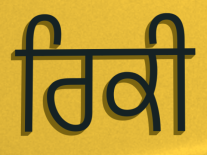
ਰਿਕੀ